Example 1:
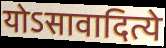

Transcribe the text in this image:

योऽसावादित्ये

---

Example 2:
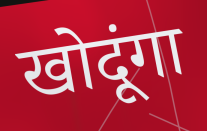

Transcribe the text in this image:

खोदूंगा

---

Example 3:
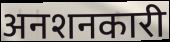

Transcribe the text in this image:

अनशनकारी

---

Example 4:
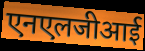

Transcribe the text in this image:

एनएलजीआई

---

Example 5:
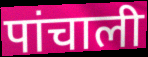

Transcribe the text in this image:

पांचाली